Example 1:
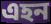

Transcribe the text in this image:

এহন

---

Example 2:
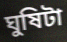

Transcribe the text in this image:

ঘুষিটা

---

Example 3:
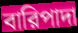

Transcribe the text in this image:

বারিপাদা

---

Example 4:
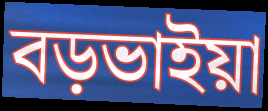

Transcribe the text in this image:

বড়ভাইয়া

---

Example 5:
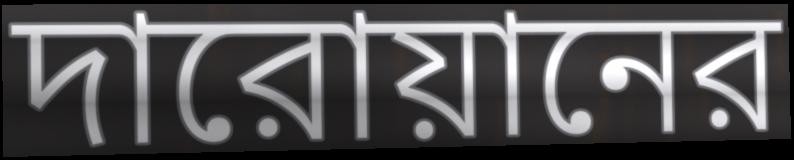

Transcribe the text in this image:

দারোয়ানের